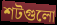
শটগুলো